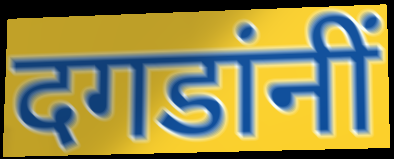
दगडांनीं